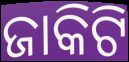
ଜାକିଟି